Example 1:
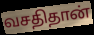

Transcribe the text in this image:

வசதிதான்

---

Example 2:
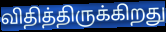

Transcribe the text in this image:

விதித்திருக்கிறது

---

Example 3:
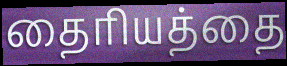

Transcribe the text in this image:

தைரியத்தை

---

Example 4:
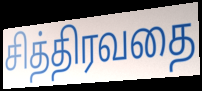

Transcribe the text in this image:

சித்திரவதை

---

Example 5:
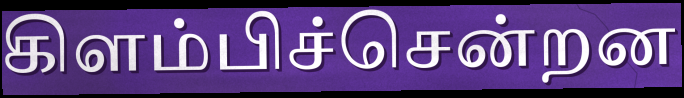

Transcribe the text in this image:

கிளம்பிச்சென்றன